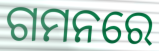
ଗମନରେ